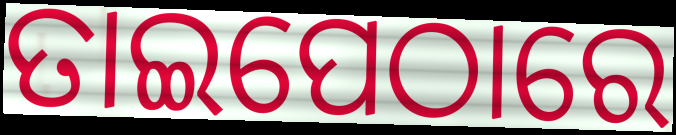
ତାଇପେଠାରେ